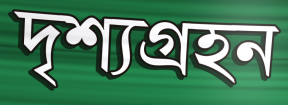
দৃশ্যগ্ৰহন